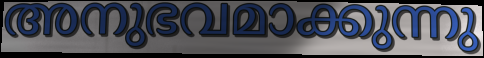
അനുഭവമാക്കുന്നു